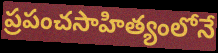
ప్రపంచసాహిత్యంలోనే